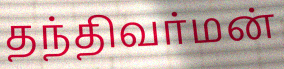
தந்திவர்மன்